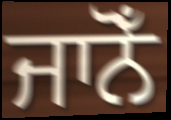
ਜਾਨੋਁ